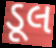
ડૂલ